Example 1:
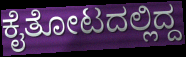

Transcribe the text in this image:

ಕೈತೋಟದಲ್ಲಿದ್ದ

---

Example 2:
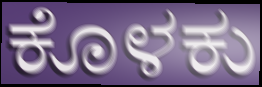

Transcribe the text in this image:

ಕೊಳಕು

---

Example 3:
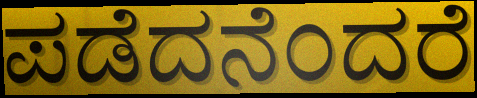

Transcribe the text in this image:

ಪಡೆದನೆಂದರೆ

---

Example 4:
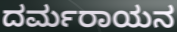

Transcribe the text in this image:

ದರ್ಮರಾಯನ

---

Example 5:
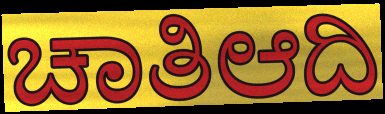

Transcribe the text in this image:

ಚಾತಿಆದಿ